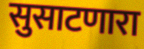
सुसाटणारा